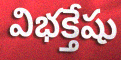
విభక్తేషు